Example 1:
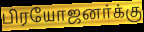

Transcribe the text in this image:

பிரயோஜனர்க்கு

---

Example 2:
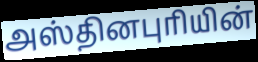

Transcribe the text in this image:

அஸ்தினபுரியின்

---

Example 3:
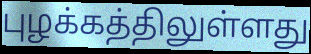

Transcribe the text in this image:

புழக்கத்திலுள்ளது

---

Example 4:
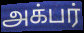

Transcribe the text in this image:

அக்பர்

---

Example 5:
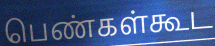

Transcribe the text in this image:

பெண்கள்கூட